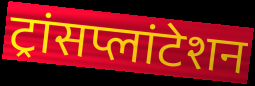
ट्रांसप्लांटेशन